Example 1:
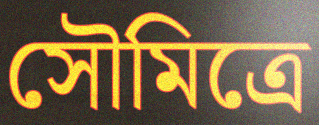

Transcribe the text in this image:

সৌমিত্রে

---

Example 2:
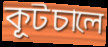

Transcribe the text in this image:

কূটচালে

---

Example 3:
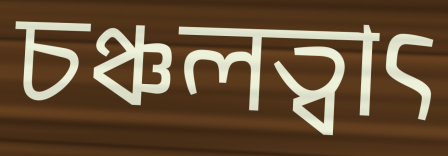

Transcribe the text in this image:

চঞ্চলত্বাৎ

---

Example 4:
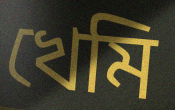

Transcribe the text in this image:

খেমি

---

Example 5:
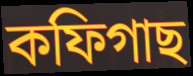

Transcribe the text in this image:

কফিগাছ